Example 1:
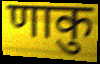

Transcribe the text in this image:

णाकु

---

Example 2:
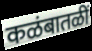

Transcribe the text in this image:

कळंबातळीं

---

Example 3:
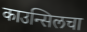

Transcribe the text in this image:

काउन्सिलचा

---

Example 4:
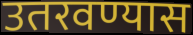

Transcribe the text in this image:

उतरवण्यास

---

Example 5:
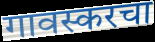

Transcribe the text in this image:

गावस्करचा